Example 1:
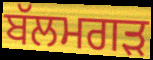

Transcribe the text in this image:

ਬੱਲਮਗੜ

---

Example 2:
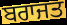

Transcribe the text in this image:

ਬਰਾਜਤ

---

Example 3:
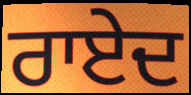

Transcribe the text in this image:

ਰਾਏਦ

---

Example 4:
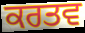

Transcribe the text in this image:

ਕਰਤਵ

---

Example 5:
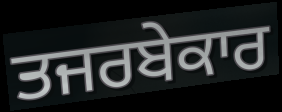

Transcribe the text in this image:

ਤਜਰਬੇਕਾਰ